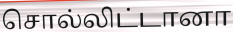
சொல்லிட்டானா